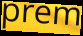
prem